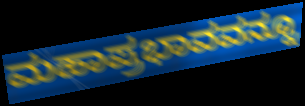
ಮಹಾಪ್ರಭಾವವನ್ನೂ